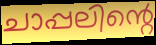
ചാപ്പലിന്റെ